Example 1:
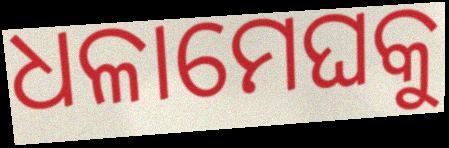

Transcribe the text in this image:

ଧଳାମେଘକୁ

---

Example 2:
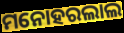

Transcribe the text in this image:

ମନୋହରଲାଲ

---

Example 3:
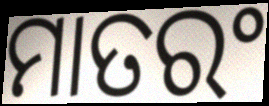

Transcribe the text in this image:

ମାତରଂ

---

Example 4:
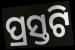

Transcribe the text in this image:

ପ୍ରସ୍ତଟି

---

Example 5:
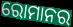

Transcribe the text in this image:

ରୋମାନର